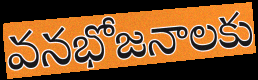
వనభోజనాలకు